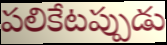
పలికేటప్పుడు